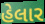
હેલાર